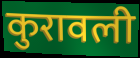
कुरावली